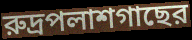
রুদ্রপলাশগাছের